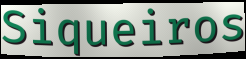
Siqueiros